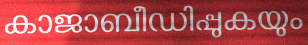
കാജാബീഡിപ്പുകയും